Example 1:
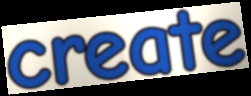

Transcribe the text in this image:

create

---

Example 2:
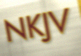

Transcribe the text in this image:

NKJV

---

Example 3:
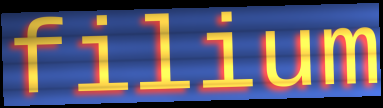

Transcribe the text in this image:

filium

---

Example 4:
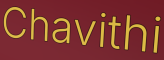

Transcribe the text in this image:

Chavithi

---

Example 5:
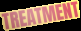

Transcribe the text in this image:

TREATMENT